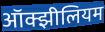
ऑक्झीलियम